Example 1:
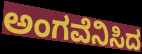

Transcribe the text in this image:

ಅಂಗವೆನಿಸಿದ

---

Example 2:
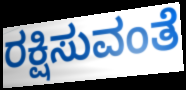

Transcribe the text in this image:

ರಕ್ಷಿಸುವಂತೆ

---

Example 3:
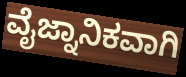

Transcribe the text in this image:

ವೈಜ್ನಾನಿಕವಾಗಿ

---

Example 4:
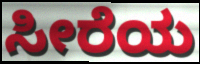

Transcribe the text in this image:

ಸೀರೆಯ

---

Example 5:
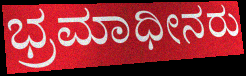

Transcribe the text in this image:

ಭ್ರಮಾಧೀನರು